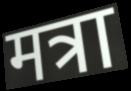
मत्रा